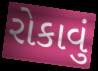
રોકાવું